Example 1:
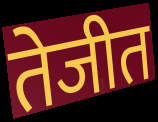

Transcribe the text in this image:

तेजीत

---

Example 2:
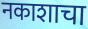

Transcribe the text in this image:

नकाशाचा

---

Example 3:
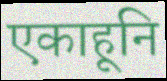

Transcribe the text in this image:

एकाहूनि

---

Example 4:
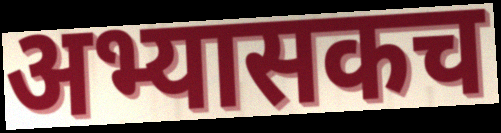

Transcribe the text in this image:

अभ्यासकच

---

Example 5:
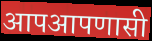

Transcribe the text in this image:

आपआपणासी